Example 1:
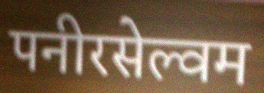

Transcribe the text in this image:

पनीरसेल्वम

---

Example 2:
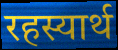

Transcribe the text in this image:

रहस्यार्थ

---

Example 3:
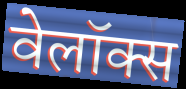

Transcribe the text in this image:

वेलॉक्स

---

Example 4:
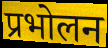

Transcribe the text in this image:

प्रभोलन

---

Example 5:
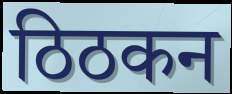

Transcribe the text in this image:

ठिठकन